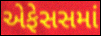
એફેસસમાં